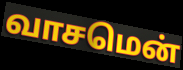
வாசமென்